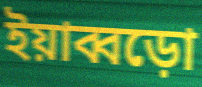
ইয়াব্বড়ো